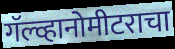
गॅल्व्हानोमीटराचा